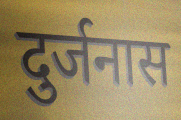
दुर्जनास